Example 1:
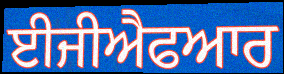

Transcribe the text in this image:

ਈਜੀਐਫਆਰ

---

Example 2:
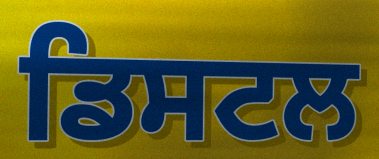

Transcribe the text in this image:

ਡਿਸਟਲ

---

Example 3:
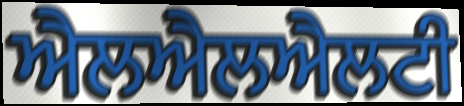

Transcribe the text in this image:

ਐਲਐਲਐਲਟੀ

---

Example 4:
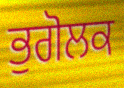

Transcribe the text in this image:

ਭੁਗੋਲਕ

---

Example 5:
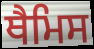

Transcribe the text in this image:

ਥੈਮਿਸ